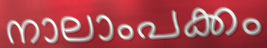
നാലാംപക്കം